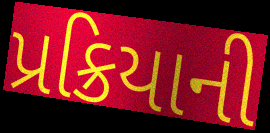
પ્રક્રિયાની